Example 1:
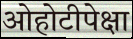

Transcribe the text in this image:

ओहोटीपेक्षा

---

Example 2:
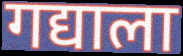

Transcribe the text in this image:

गद्याला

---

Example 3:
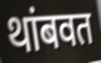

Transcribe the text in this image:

थांबवत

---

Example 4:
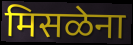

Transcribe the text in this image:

मिसळेना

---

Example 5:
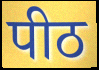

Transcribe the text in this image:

पीठ